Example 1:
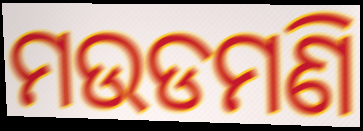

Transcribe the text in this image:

ମଉଡମଣି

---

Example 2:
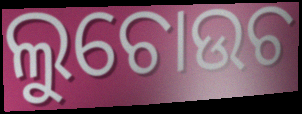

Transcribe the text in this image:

ଲୁଚୋଉଚ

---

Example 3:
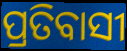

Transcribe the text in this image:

ପ୍ରତିବାସୀ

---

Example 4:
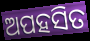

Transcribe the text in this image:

ଅପହସିତ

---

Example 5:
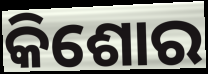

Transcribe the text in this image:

କିଶୋର